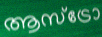
ആസ്ട്രോ